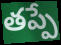
తప్పే